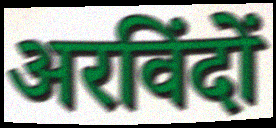
अरविंदों